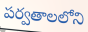
పర్వతాలలోని